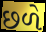
છળે